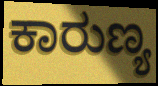
ಕಾರುಣ್ಯ